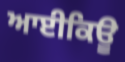
ਆਈਕਿਊ